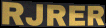
RJRER